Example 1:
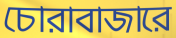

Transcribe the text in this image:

চোরাবাজারে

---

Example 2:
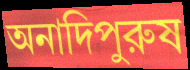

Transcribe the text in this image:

অনাদিপুরুষ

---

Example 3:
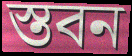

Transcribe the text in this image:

স্তবন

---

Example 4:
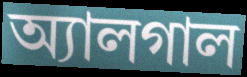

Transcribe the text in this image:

অ্যালগাল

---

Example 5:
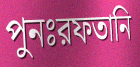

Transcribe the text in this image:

পুনঃরফতানি